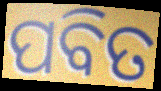
ପବିତ